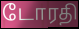
டோரதி